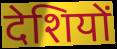
देशियों